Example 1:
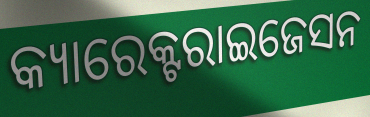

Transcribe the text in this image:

କ୍ୟାରେକ୍ଟରାଇଜେସନ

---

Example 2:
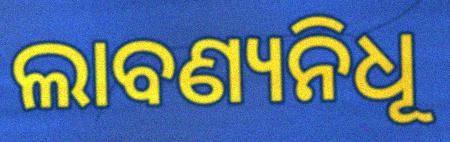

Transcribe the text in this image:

ଲାବଣ୍ୟନିଧୂ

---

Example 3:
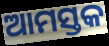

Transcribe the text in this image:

ଆମସ୍ତକ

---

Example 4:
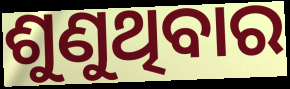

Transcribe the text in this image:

ଶୁଣୁଥିବାର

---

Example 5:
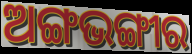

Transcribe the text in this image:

ଅଙ୍ଗଭଙ୍ଗୀର